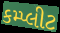
કમ્પ્લીટ